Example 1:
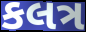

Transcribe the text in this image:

કલત્ર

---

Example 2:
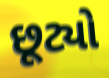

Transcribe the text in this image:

છૂટ્યો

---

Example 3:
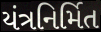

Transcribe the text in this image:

યંત્રનિર્મિત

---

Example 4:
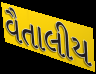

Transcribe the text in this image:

વૈતાલીય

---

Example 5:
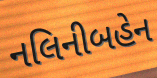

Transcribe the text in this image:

નલિનીબહેન